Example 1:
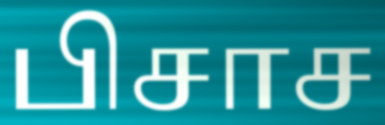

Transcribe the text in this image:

பிசாச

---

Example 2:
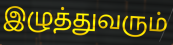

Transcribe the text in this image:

இழுத்துவரும்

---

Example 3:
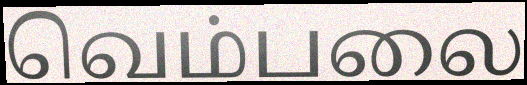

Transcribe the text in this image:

வெம்பலை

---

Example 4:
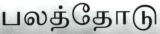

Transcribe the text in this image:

பலத்தோடு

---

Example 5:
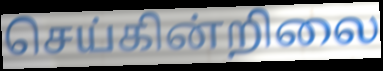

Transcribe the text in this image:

செய்கின்றிலை